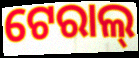
ଟେରାଲ୍